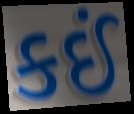
કઈં